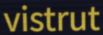
vistrut